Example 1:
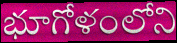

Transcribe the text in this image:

భూగోళంలోని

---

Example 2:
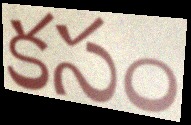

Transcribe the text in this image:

కసం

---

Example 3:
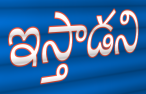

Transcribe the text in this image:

ఇస్తాడని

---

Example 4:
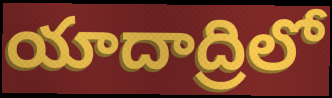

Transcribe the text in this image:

యాదాద్రిలో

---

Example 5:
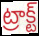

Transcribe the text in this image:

ట్రాక్ట్